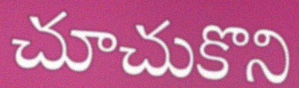
చూచుకొని